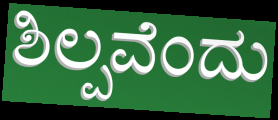
ಶಿಲ್ಪವೆಂದು